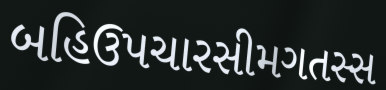
બહિઉપચારસીમગતસ્સ